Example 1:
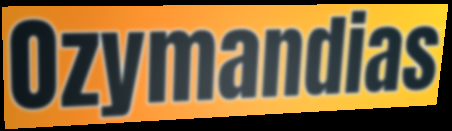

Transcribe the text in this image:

Ozymandias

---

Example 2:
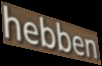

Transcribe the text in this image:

hebben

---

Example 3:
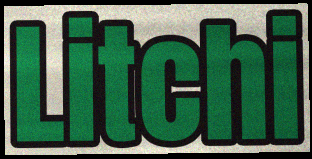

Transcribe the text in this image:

Litchi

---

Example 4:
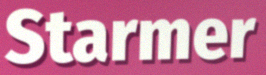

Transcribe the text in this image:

Starmer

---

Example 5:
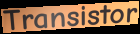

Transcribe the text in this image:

Transistor